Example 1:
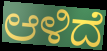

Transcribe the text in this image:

ಆಳಿದೆ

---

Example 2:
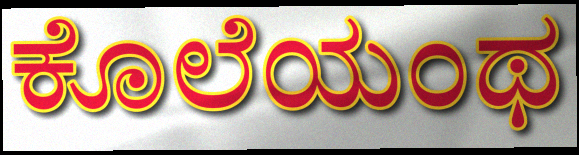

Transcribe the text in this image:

ಕೊಲೆಯಂಥ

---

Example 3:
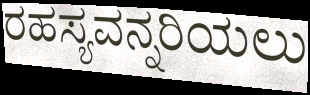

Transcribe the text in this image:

ರಹಸ್ಯವನ್ನರಿಯಲು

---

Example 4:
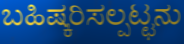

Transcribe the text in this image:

ಬಹಿಷ್ಕರಿಸಲ್ಪಟ್ಟನು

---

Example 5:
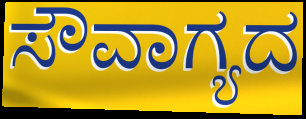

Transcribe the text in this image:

ಸೌವಾಗ್ಯದ